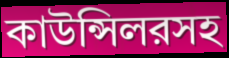
কাউন্সিলরসহ